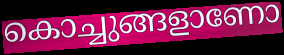
കൊച്ചുങ്ങളാണോ